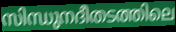
സിന്ധുനദീതടത്തിലെ